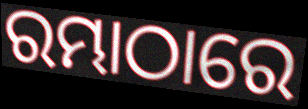
ରମ୍ଭାଠାରେ